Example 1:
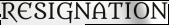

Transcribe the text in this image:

RESIGNATION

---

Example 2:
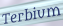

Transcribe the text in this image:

Terbium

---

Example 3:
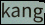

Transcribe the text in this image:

kang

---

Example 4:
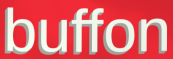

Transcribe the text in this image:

buffon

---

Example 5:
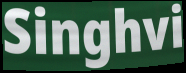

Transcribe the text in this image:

Singhvi